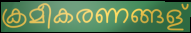
ക്രമീകരണങ്ങള്